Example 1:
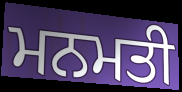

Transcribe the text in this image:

ਮਨਮਤੀ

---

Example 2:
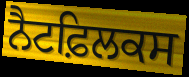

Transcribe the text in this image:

ਨੈਟਫ਼ਿਲਕਸ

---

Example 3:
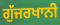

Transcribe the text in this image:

ਗੁੱਜਰਖਾਨੀ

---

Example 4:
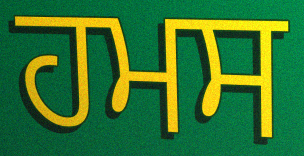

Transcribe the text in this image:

ਹਮਸ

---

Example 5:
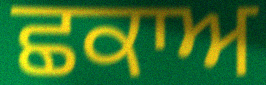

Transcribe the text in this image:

ਛਕਾਅ